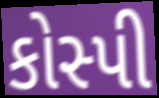
કોસ્પી